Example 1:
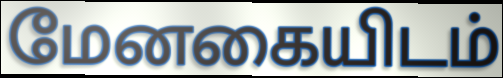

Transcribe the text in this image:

மேனகையிடம்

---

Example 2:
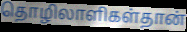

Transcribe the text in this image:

தொழிலாளிகள்தான்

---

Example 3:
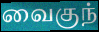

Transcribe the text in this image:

வைகுந்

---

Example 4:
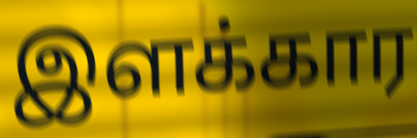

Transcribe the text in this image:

இளக்கார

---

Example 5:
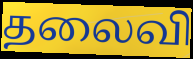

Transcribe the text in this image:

தலைவி